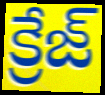
క్రేజ్